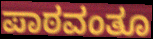
ಪಾಠವಂತೂ